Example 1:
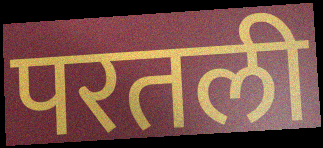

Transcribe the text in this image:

परतली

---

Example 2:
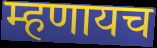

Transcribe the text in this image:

म्हणायच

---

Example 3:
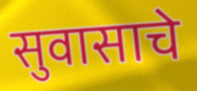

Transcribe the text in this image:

सुवासाचे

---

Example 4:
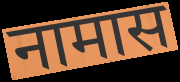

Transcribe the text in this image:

नामास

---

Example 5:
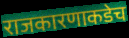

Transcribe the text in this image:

राजकारणाकडेच